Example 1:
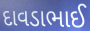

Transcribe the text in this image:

દાવડાભાઈ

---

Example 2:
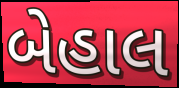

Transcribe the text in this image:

બેહાલ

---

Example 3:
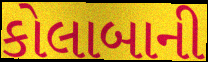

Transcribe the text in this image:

કોલાબાની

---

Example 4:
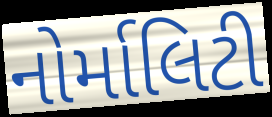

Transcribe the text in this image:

નોર્માલિટી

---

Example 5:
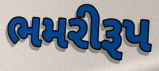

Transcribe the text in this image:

ભમરીરૂપ